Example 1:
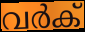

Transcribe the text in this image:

വർക്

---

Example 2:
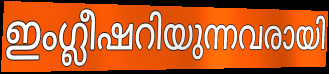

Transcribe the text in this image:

ഇംഗ്ലീഷറിയുന്നവരായി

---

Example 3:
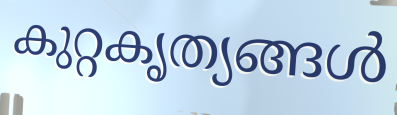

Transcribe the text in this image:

കുറ്റകൃത്യങ്ങൾ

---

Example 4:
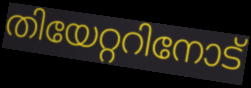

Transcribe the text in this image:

തിയേറ്ററിനോട്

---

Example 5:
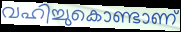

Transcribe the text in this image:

വഹിച്ചുകൊണ്ടാണ്